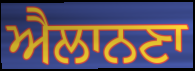
ਐਲਾਨਣਾ